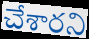
చేశారని